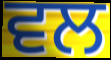
ਵਲ